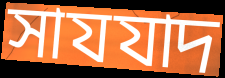
সাযযাদ